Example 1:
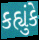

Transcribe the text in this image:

કહ્યુંકે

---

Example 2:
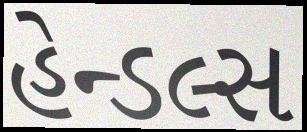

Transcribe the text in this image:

હેન્ડલ્સ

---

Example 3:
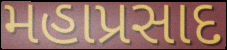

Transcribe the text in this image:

મહાપ્રસાદ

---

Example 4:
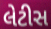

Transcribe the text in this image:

લેટીસ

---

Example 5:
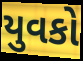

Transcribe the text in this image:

યુવકો